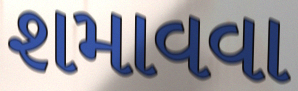
શમાવવા